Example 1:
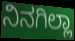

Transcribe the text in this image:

ನಿನಗಿಲ್ಲಾ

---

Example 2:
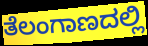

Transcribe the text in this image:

ತೆಲಂಗಾಣದಲ್ಲಿ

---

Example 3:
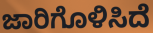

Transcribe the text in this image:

ಜಾರಿಗೊಳಿಸಿದೆ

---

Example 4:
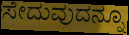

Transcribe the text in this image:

ಸೇದುವುದನ್ನೂ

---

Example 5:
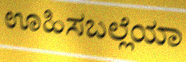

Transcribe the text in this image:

ಊಹಿಸಬಲ್ಲೆಯಾ